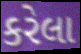
કરેલા